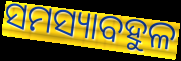
ସମସ୍ୟାବହୁଳ